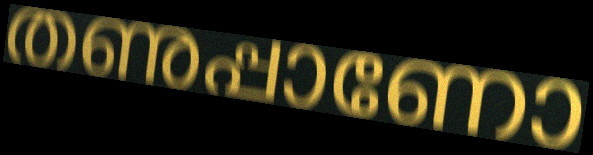
തണുപ്പാണോ